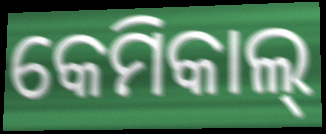
କେମିକାଲ୍